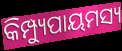
କିମ୍ପ୍ୟୁପାୟମସ୍ୟ